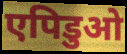
एपिडुओ